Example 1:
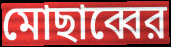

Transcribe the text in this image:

মোছাব্বের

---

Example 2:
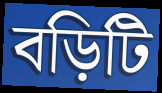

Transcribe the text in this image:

বড়িটি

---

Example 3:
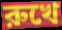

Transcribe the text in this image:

রুখে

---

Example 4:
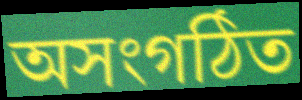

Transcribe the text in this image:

অসংগঠিত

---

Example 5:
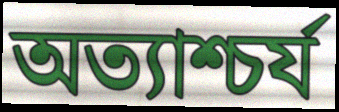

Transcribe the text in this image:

অত্যাশ্চর্য